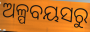
ଅଳ୍ପବୟସରୁ